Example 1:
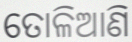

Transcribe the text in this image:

ତୋଳିଆଣି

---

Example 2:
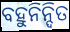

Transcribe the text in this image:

ବହୁନିନ୍ଦିତ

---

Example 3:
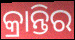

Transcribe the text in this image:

କ୍ରାନ୍ତିର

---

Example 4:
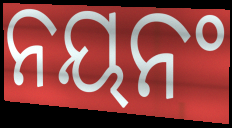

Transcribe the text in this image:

ନୟନଂ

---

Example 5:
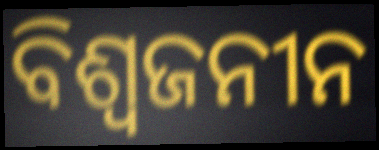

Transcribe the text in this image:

ବିଶ୍ବଜନୀନ